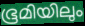
ഭൂമിയിലും